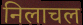
निलाचल